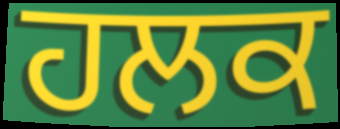
ਹਲਕ